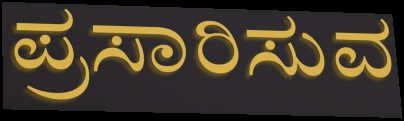
ಪ್ರಸಾರಿಸುವ